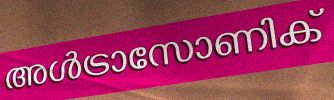
അൾട്രാസോണിക്